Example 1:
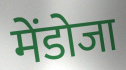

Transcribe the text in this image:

मेंडोजा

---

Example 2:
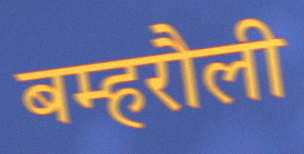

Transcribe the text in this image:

बम्हरौली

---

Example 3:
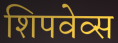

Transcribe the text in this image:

शिपवेव्स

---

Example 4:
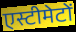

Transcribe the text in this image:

एस्टीमेटों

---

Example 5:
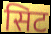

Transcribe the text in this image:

सिट